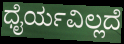
ಧೈರ್ಯವಿಲ್ಲದೆ